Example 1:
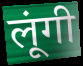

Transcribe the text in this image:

लूंगी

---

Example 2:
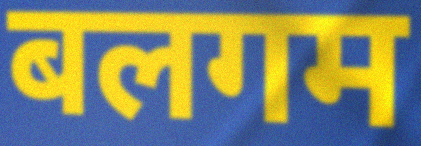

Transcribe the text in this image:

बलगम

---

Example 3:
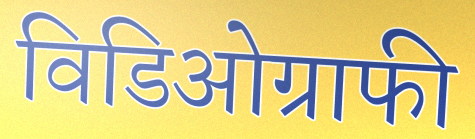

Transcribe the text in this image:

विडिओग्राफी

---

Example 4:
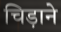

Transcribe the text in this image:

चिड़ाने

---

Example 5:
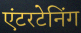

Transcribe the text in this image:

एंटरटेनिंग